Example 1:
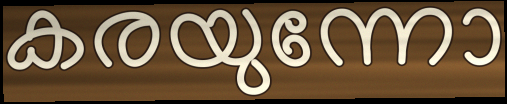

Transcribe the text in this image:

കരയുന്നോ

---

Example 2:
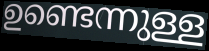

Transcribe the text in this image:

ഉണ്ടെന്നുള്ള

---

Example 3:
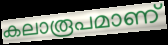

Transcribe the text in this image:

കലാരൂപമാണ്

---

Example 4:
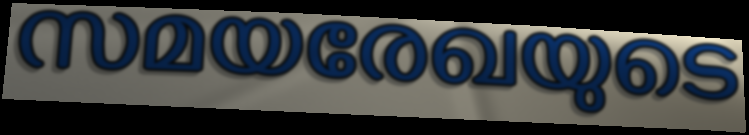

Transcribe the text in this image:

സമയരേഖയുടെ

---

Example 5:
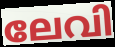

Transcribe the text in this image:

ലേവി